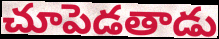
చూపెడతాడు